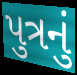
પુત્રનું